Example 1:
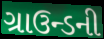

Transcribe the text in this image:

ગ્રાઉન્ડની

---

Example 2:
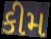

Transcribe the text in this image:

કીમ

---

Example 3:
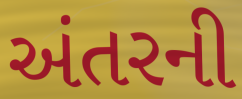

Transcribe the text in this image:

અંતરની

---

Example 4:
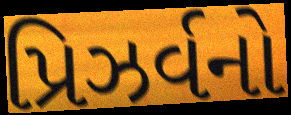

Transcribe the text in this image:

પ્રિઝર્વનો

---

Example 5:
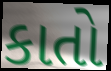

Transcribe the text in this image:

કાતો